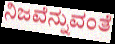
ನಿಜವೆನ್ನುವಂತೆ